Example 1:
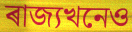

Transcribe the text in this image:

ৰাজ্যখনেও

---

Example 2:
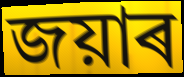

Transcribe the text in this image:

জয়াৰ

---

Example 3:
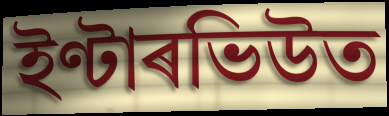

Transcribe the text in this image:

ইণ্টাৰভিউত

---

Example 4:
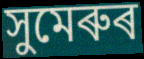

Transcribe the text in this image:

সুমেৰুৰ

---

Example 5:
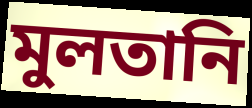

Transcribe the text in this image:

মুলতানি